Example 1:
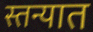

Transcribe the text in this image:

स्तन्यात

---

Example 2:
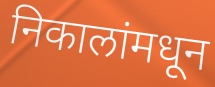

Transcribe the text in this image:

निकालांमधून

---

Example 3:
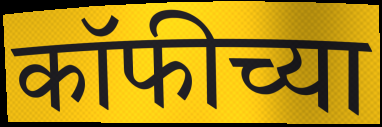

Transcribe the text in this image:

कॉफीच्या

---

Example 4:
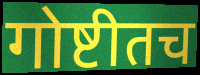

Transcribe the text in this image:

गोष्टीतच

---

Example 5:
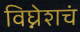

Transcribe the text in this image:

विघ्नेशचं